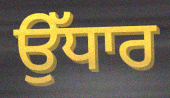
ਉੱਧਾਰ